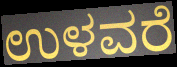
ಉಳವರೆ